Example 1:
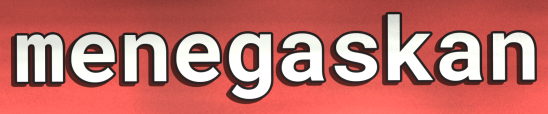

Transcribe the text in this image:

menegaskan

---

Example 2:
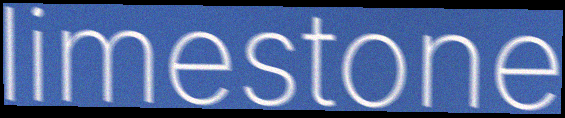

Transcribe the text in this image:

limestone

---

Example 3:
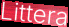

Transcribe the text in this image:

Littera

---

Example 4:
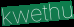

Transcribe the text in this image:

kwethu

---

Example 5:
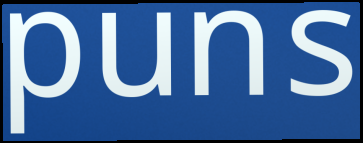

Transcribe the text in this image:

puns